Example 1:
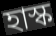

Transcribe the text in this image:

হাস্ক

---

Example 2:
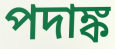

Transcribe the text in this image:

পদাঙ্ক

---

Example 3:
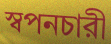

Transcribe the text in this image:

স্বপনচারী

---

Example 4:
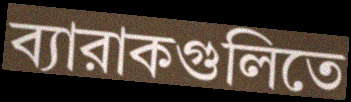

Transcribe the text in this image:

ব্যারাকগুলিতে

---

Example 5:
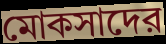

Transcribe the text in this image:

মোকসাদের